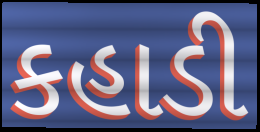
કહાડી